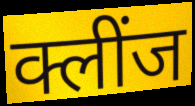
क्लींज